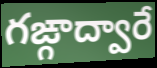
గఙ్గాద్వారే